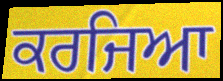
ਕਰਜਿਆ